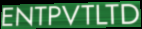
ENTPVTLTD